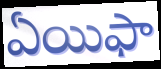
ఏయిఫా